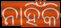
ନାହିଁକି